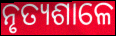
ନୃତ୍ୟଶାଳେ